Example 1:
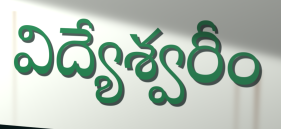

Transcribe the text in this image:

విద్యేశ్వరీం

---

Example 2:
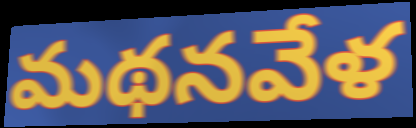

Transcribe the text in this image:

మథనవేళ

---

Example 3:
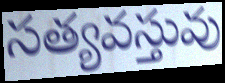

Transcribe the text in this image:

సత్యవస్తువు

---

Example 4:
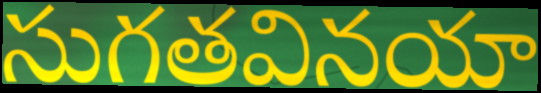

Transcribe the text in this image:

సుగతవినయా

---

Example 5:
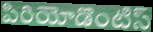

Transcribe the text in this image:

పిరియోడొంటిస్